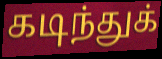
கடிந்துக்